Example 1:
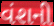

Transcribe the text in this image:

વંશની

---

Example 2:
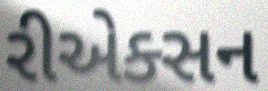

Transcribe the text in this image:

રીએક્સન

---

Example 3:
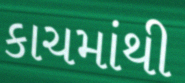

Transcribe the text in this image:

કાચમાંથી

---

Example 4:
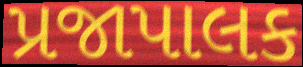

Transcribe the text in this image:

પ્રજાપાલક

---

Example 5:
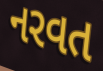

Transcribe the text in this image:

નરવત